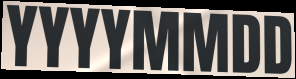
YYYYMMDD